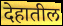
देहातील